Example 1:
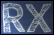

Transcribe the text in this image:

RX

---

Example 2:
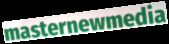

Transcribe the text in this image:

masternewmedia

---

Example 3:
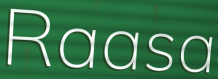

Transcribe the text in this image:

Raasa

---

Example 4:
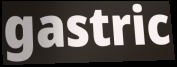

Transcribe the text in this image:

gastric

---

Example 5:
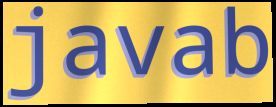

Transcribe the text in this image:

javab